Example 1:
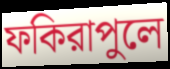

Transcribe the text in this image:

ফকিরাপুলে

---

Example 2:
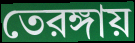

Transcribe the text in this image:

তেরঙ্গায়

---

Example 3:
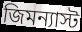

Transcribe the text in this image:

জিমন্যাস্ট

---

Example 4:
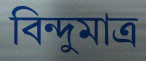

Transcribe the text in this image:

বিন্দুমাত্র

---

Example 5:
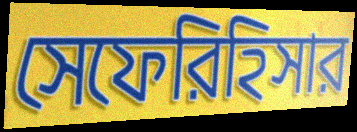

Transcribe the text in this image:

সেফেরিহিসার